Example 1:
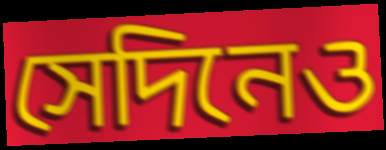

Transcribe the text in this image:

সেদিনেও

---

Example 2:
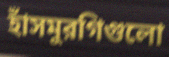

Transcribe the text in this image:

হাঁসমুরগিগুলো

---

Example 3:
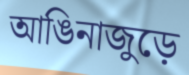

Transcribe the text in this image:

আঙিনাজুড়ে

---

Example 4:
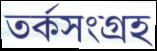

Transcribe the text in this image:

তর্কসংগ্রহ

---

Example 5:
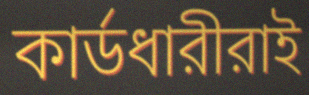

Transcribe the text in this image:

কার্ডধারীরাই